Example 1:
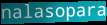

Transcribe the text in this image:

nalasopara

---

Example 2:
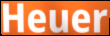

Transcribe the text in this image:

Heuer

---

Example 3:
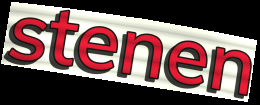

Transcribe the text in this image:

stenen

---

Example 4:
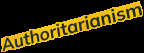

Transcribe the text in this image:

Authoritarianism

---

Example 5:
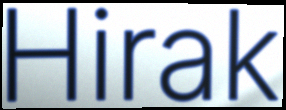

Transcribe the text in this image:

Hirak